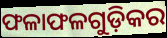
ଫଳାଫଳଗୁଡ଼ିକର